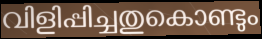
വിളിപ്പിച്ചതുകൊണ്ടും